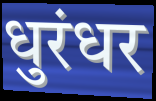
धुरंधर